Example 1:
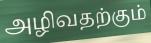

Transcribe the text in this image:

அழிவதற்கும்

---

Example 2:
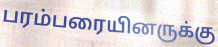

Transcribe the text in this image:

பரம்பரையினருக்கு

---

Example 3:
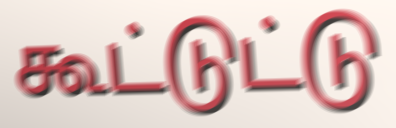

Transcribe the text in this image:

கூட்டுட்டு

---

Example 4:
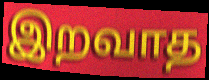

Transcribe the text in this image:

இறவாத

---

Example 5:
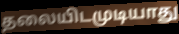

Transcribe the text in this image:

தலையிடமுடியாது